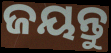
ଜୟନ୍ତୁ